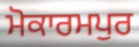
ਮੋਕਾਰਮਪੁਰ